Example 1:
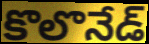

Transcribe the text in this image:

కొలొనేడ్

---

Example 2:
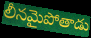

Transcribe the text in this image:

లీనమైపోతాడు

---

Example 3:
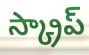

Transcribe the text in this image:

స్క్రాప్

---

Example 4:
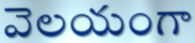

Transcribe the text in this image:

వెలయంగా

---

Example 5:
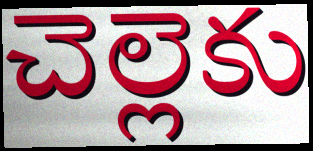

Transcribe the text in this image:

చెల్లెకు